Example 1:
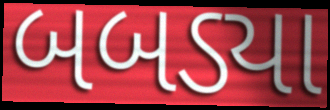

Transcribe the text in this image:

બબડ્યા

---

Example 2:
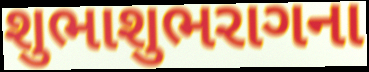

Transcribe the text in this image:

શુભાશુભરાગના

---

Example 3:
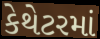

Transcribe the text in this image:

કેથેટરમાં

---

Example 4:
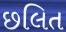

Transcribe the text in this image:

છલિત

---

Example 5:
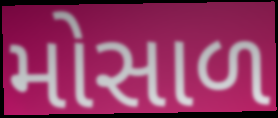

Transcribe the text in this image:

મોસાળ